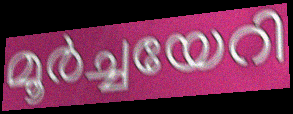
മൂർച്ചയേറി